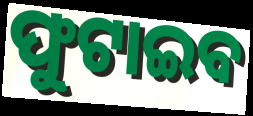
ଫୁଟାଇବ